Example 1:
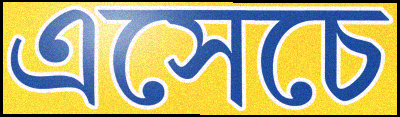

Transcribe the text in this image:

এসেচে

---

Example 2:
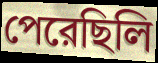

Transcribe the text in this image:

পেরেছিলি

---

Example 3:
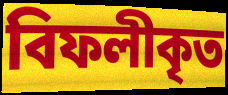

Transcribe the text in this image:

বিফলীকৃত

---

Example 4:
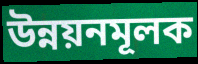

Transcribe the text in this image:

উন্নয়নমূলক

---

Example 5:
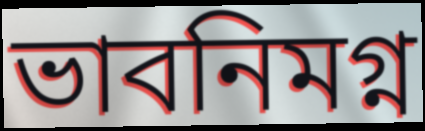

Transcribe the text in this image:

ভাবনিমগ্ন